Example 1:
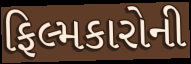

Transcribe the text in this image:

ફિલ્મકારોની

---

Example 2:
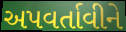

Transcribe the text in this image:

અપવર્તાવીને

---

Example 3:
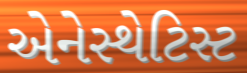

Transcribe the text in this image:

એનેસ્થેટિસ્ટ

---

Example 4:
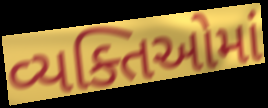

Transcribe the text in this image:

વ્યક્તિઓમાં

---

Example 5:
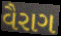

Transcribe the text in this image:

વૈરાગ